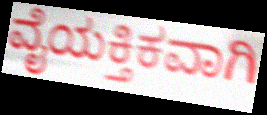
ವೈಯಕ್ತಿಕವಾಗಿ